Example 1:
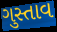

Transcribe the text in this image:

ગુસ્તાવ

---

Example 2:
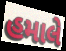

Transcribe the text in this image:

હમાલે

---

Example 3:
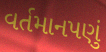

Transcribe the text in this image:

વર્તમાનપણું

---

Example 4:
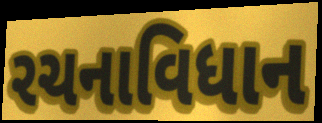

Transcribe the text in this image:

રચનાવિધાન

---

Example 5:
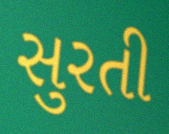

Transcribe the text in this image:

સુરતી